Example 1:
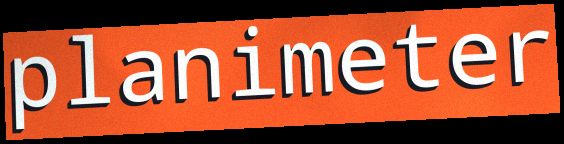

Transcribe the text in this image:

planimeter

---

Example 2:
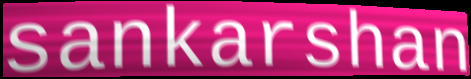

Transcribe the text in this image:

sankarshan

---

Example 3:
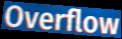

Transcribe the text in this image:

Overflow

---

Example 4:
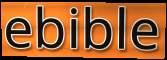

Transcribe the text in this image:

ebible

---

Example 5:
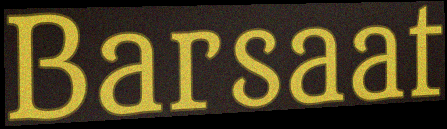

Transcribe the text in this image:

Barsaat